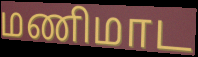
மணிமாட